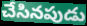
చేసినపుడు